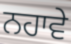
ਨਹਾਵੇ